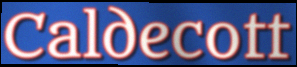
Caldecott